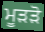
ਮੂੜੜੋ